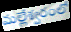
మల్లేశ్వరంలో